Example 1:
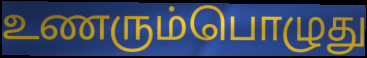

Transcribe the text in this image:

உணரும்பொழுது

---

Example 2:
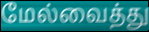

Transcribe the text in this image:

மேல்வைத்து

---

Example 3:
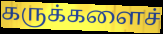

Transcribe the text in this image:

கருக்களைச்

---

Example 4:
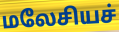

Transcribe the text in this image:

மலேசியச்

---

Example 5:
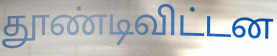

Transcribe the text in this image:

தூண்டிவிட்டன